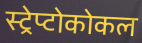
स्ट्रेप्टोकोकल